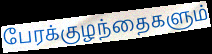
பேரக்குழந்தைகளும்